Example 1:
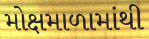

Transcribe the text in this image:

મોક્ષમાળામાંથી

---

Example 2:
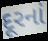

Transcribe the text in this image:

દૂરનાં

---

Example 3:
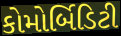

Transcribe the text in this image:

કોમોર્બિડિટી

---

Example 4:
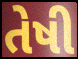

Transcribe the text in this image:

તેષી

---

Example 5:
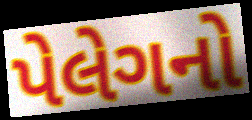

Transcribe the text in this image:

પેલેગનો